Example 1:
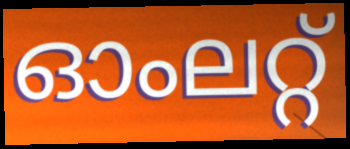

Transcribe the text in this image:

ഓംലറ്റ്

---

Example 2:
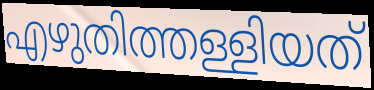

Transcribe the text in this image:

എഴുതിത്തള്ളിയത്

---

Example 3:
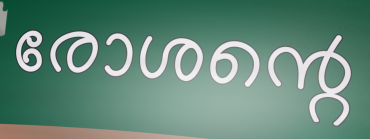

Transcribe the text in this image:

രോശന്റെ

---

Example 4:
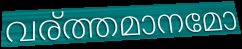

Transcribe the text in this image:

വര്ത്തമാനമോ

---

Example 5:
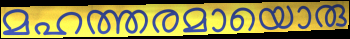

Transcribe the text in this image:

മഹത്തരമായൊരു